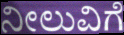
ನೀಲುವಿಗೆ